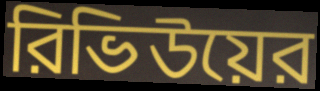
রিভিউয়ের